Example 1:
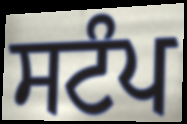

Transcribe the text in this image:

ਸਟੰਪ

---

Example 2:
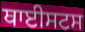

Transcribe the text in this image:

ਥਾਈਸਟਸ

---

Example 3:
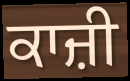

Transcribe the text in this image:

ਕਾਜ਼ੀ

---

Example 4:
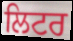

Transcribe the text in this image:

ਲਿਟਰ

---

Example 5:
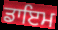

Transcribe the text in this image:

ਡਾਇਮ